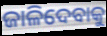
ଜାଳିଦେବାକୁ